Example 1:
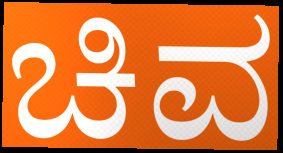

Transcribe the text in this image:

ಚಿವ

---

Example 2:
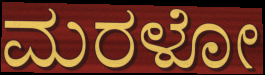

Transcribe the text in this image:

ಮರಳೋ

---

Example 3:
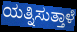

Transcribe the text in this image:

ಯತ್ನಿಸುತ್ತಾಳೆ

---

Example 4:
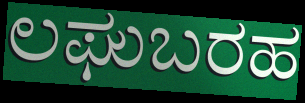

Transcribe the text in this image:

ಲಘುಬರಹ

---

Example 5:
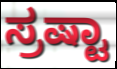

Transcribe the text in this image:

ಸ್ರಷ್ಟಾ